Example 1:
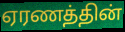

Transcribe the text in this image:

ஏரணத்தின்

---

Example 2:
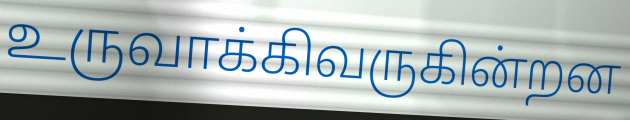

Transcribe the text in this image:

உருவாக்கிவருகின்றன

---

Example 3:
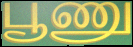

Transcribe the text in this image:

பூணு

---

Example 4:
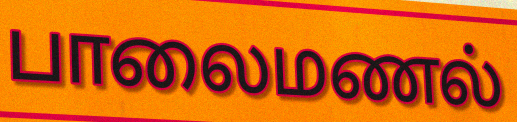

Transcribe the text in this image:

பாலைமணல்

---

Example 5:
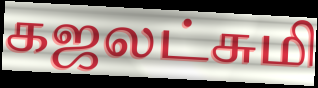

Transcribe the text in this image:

கஜலட்சுமி